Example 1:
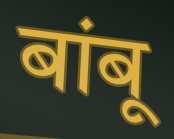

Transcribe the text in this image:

बांबू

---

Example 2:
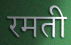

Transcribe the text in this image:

रमती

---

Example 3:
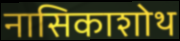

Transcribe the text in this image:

नासिकाशोथ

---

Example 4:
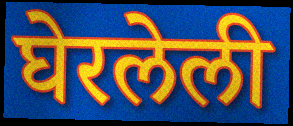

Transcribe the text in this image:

घेरलेली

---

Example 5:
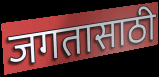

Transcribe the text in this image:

जगतासाठी